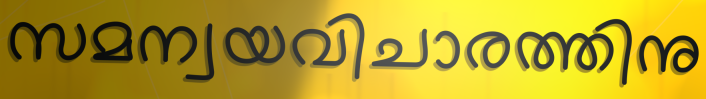
സമന്വയവിചാരത്തിനു